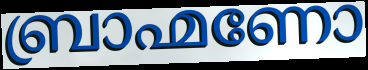
ബ്രാഹ്മണോ